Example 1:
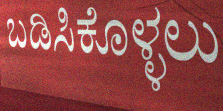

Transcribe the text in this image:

ಬಡಿಸಿಕೊಳ್ಳಲು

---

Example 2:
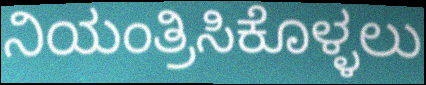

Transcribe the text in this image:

ನಿಯಂತ್ರಿಸಿಕೊಳ್ಳಲು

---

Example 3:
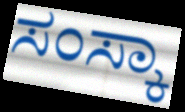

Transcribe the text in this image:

ಸಂಸ್ಕಾ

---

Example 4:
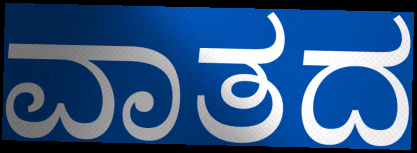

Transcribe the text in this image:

ವಾತದ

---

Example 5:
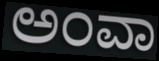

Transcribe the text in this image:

ಅಂವಾ